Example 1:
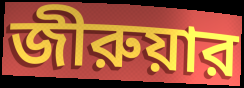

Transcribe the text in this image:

জীরুয়ার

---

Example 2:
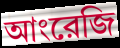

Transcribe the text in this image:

আংরেজি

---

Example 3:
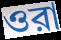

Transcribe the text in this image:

ওরা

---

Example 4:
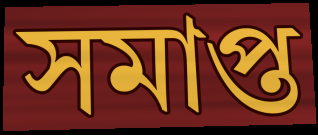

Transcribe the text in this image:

সমাপ্ত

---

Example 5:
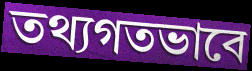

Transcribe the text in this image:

তথ্যগতভাবে